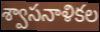
శ్వాసనాళికల